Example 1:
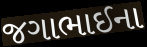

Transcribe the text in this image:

જગાભાઈના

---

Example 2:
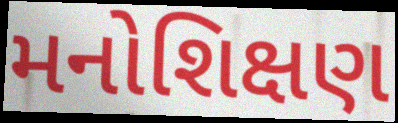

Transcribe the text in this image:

મનોશિક્ષણ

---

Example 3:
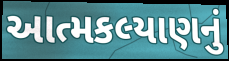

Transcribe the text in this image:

આત્મકલ્યાણનું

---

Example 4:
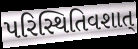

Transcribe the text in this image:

પરિસ્થિતિવશાત્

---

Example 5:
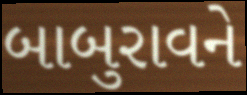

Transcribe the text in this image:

બાબુરાવને